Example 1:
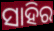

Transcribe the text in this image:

ସାହିର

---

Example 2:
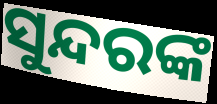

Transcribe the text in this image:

ସୁନ୍ଦରଙ୍କ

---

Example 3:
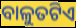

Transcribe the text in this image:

ବାଳୁତଟିଏ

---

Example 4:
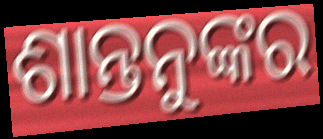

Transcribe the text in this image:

ଶାନ୍ତନୁଙ୍କର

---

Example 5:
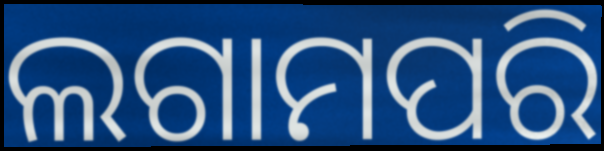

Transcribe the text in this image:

ଲଗାମପରି